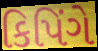
કિપિંગે